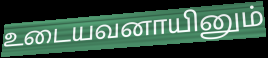
உடையவனாயினும்